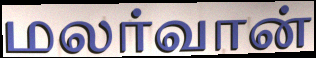
மலர்வான்